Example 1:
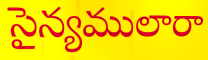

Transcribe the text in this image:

సైన్యములారా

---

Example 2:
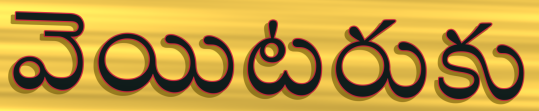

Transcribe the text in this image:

వెయిటరుకు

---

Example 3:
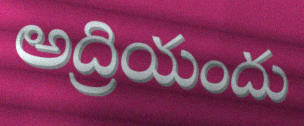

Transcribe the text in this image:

అద్రియందు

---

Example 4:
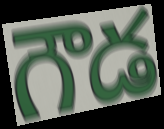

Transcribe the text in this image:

గౌడ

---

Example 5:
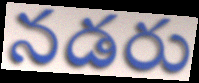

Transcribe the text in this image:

నడరు